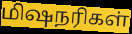
மிஷநரிகள்